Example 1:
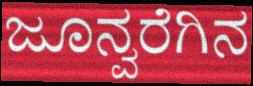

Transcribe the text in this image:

ಜೂನ್ವರೆಗಿನ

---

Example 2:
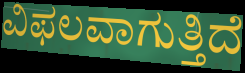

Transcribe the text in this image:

ವಿಫಲವಾಗುತ್ತಿದೆ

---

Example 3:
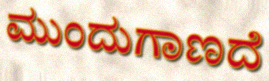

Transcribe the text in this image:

ಮುಂದುಗಾಣದೆ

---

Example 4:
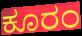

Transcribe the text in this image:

ಕೂರಂ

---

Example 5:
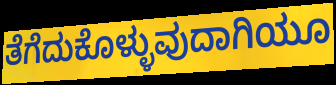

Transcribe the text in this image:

ತೆಗೆದುಕೊಳ್ಳುವುದಾಗಿಯೂ